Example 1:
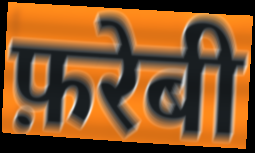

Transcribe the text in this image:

फ़रेबी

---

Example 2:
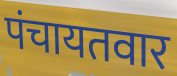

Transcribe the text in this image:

पंचायतवार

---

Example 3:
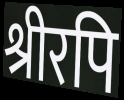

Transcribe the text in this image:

श्रीरपि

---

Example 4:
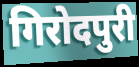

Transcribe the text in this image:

गिरोदपुरी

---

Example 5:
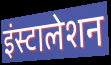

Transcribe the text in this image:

इंस्टालेशन